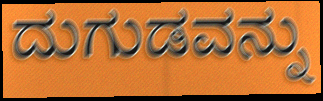
ದುಗುಡವನ್ನು